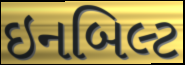
ઇનબિલ્ટ